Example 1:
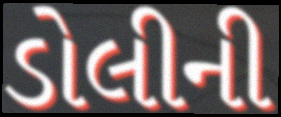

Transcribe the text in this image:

ડોલીની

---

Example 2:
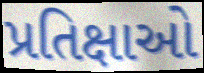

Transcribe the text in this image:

પ્રતિક્ષાઓ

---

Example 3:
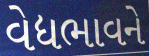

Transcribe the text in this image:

વેદ્યભાવને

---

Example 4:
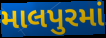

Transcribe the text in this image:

માલપુરમાં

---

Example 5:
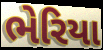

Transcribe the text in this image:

ભેરિયા